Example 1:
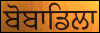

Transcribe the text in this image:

ਬੋਬਾਡਿਲਾ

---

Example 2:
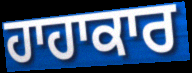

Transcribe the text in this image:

ਹਾਹਾਕਾਰ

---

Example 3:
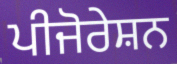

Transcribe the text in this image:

ਪੀਜੋਰੇਸ਼ਨ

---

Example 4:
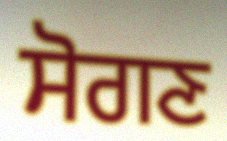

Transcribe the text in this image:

ਸੋਗਣ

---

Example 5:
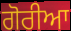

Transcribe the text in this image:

ਗੋਰੀਆ